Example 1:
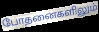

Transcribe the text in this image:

போதனைகளிலும்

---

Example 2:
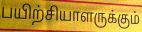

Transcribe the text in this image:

பயிற்சியாளருக்கும்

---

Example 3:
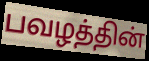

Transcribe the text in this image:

பவழத்தின்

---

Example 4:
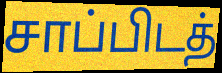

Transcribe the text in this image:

சாப்பிடத்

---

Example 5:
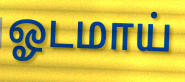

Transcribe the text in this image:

ஓடமாய்